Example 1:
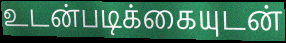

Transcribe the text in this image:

உடன்படிக்கையுடன்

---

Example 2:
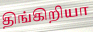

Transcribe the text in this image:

திங்கிறியா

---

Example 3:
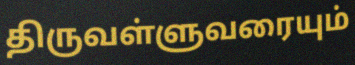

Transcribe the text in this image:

திருவள்ளுவரையும்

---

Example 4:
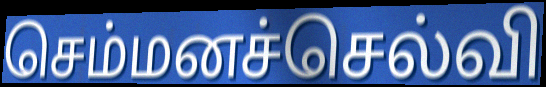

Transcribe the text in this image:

செம்மனச்செல்வி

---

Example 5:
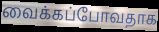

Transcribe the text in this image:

வைக்கப்போவதாக